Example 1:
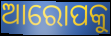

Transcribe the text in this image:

ଆରୋପକୁ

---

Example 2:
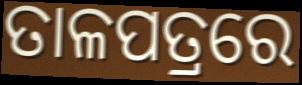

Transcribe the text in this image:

ତାଳପତ୍ରରେ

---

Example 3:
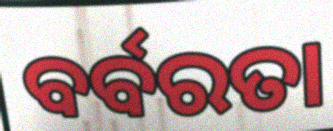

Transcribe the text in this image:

ବର୍ବରତା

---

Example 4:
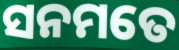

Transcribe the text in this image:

ସନମତେ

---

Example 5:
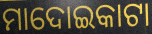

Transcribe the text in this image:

ମାଦୋଇକାଟା